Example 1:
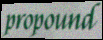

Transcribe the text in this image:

propound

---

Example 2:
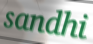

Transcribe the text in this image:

sandhi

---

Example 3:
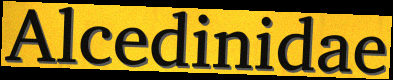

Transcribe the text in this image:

Alcedinidae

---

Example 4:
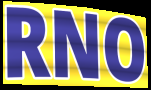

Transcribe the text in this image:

RNO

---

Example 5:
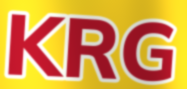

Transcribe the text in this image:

KRG